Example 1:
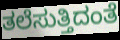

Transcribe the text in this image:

ತಲೆಸುತ್ತಿದಂತೆ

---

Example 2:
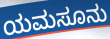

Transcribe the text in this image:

ಯಮಸೂನು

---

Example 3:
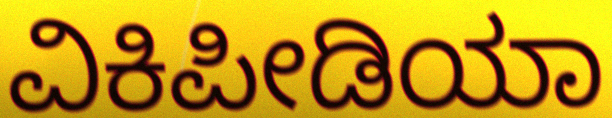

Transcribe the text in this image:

ವಿಕಿಪೀಡಿಯಾ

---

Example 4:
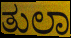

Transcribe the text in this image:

ತುಲಾ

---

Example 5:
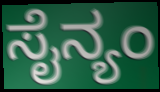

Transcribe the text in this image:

ಸೈನ್ಯಂ